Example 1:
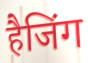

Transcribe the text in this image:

हैजिंग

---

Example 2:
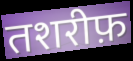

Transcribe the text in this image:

तशरीफ़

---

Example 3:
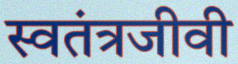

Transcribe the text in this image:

स्वतंत्रजीवी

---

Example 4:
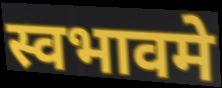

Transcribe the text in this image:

स्वभावमे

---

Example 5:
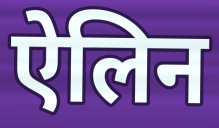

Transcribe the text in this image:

ऐलिन